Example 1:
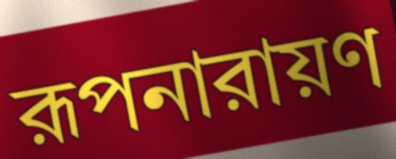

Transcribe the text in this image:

রূপনারায়ণ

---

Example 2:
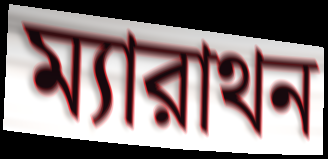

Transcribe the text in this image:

ম্যারাথন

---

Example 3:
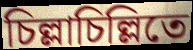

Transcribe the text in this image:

চিল্লাচিল্লিতে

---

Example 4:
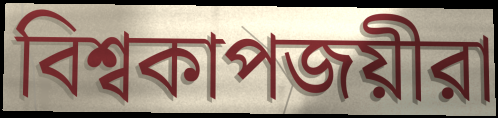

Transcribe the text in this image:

বিশ্বকাপজয়ীরা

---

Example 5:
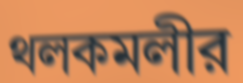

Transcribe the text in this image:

থলকমলীর